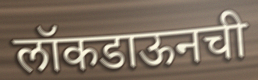
लॉकडाऊनची